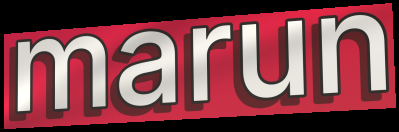
marun